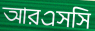
আরএসসি